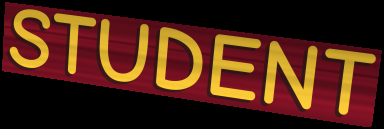
STUDENT